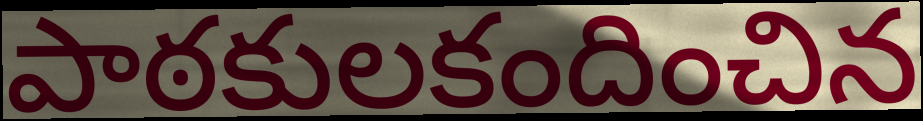
పాఠకులకందించిన